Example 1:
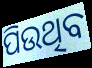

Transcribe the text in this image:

ପିଉଥିବ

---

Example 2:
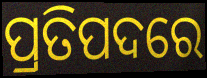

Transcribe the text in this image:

ପ୍ରତିପଦରେ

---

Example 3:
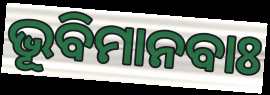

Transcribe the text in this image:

ଭୂବିମାନବାଃ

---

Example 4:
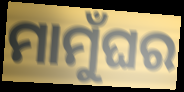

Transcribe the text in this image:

ମାମୁଁଘର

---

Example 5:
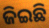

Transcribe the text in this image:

ଜିଇଛି